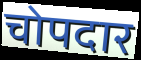
चोपदार